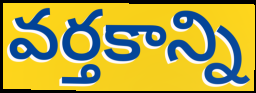
వర్తకాన్ని